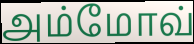
அம்மோவ்